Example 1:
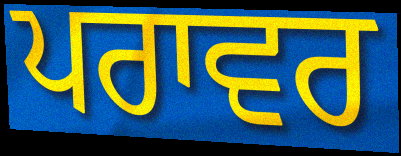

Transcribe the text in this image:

ਪਰਾਵਰ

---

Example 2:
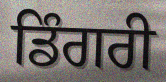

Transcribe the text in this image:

ਡਿੰਗਰੀ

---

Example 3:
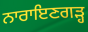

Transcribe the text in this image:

ਨਾਰਾਇਣਗੜ੍ਹ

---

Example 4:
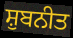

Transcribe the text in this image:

ਸ਼ੁਬਨੀਤ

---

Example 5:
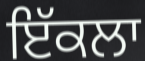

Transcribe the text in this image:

ਇੱਕਲਾ